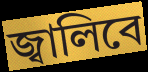
জ্বালিবে